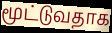
மூட்டுவதாக